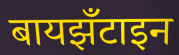
बायझँटाइन